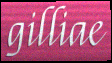
gilliae